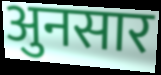
अुनसार